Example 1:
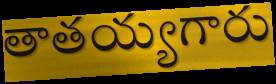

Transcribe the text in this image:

తాతయ్యగారు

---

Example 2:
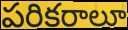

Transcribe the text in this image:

పరికరాలూ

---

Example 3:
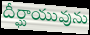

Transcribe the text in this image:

దీర్ఘాయువును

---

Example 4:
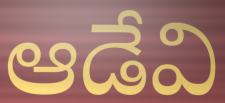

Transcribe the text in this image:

ఆడేవి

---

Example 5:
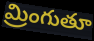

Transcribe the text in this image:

మ్రింగుతూ